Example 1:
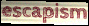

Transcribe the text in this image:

escapism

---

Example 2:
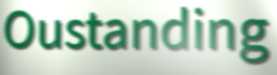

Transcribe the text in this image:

Oustanding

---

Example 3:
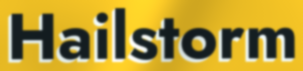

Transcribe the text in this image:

Hailstorm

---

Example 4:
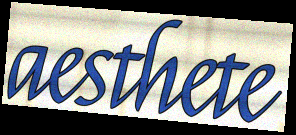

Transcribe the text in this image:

aesthete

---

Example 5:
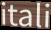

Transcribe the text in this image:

itali